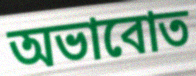
অভাবোত